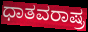
ಧಾತವರಾಷ್ರ